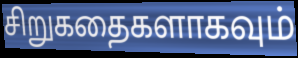
சிறுகதைகளாகவும்